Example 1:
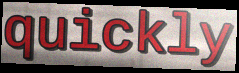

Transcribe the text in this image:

quickly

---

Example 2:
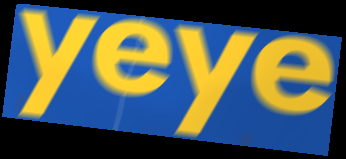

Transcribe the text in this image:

yeye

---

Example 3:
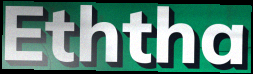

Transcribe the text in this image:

Eththa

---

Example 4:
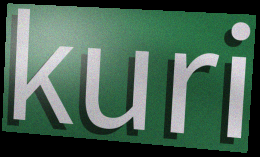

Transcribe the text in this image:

kuri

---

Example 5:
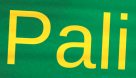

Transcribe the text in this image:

Pali